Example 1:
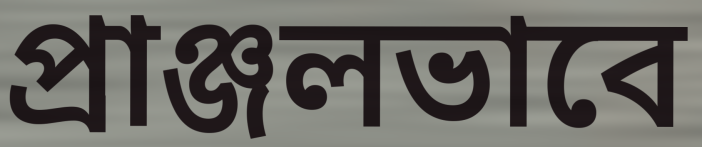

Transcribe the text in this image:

প্রাঞ্জলভাবে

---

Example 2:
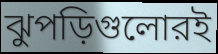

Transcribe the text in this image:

ঝুপড়িগুলোরই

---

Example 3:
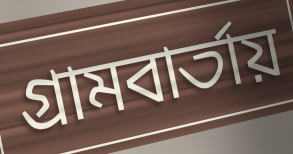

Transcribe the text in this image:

গ্রামবার্তায়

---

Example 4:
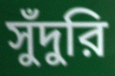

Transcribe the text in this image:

সুঁদুরি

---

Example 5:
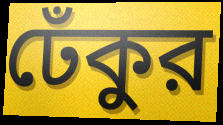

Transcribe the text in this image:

ঢেঁকুর